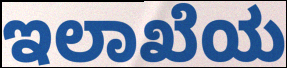
ಇಲಾಖೆಯ